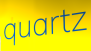
quartz